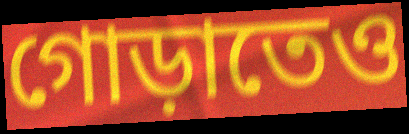
গোড়াতেও